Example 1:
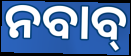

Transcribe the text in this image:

ନବାବ୍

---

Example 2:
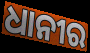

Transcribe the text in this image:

ଧାନୀର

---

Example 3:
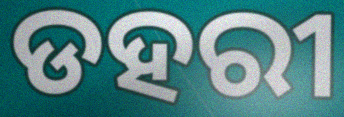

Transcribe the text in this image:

ଡହରୀ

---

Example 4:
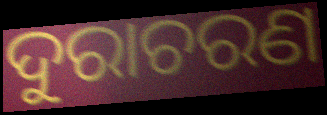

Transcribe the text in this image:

ଦୁରାଚରଣ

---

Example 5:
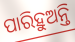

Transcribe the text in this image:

ପାରିହୁଅନ୍ତି